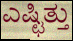
ಎಷ್ಟಿತ್ತು